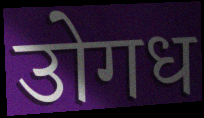
उोगध